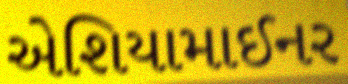
એશિયામાઈનર